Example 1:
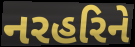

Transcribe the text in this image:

નરહરિને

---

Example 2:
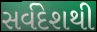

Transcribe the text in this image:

સર્વદેશથી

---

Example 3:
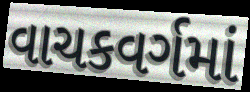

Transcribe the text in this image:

વાચકવર્ગમાં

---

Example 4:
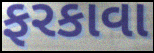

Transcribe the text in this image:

ફરકાવા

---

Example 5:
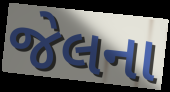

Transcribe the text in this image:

જેલના